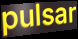
pulsar